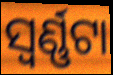
ସ୍ୱର୍ଣ୍ଣଟା